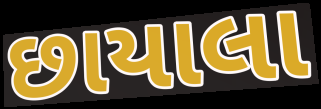
છાયાલા